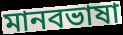
মানবভাষা